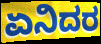
ಏನಿದರ